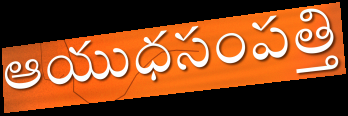
ఆయుధసంపత్తి